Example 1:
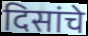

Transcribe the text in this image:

दिसांचे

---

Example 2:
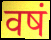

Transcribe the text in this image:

वषं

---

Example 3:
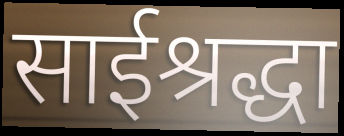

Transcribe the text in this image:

साईश्रद्धा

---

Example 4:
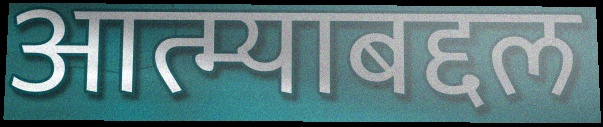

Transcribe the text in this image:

आत्म्याबद्दल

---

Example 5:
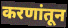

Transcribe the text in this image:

करणांतून